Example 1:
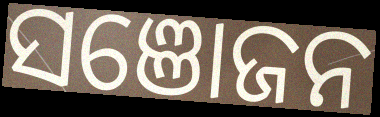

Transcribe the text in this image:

ସଞୋଜନ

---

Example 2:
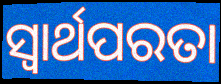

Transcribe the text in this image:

ସ୍ବାର୍ଥପରତା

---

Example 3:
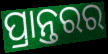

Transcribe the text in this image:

ପ୍ରାନ୍ତରର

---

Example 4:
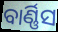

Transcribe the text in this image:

ବାର୍ଣ୍ଣିସ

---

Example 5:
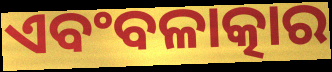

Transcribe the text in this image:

ଏବଂବଳାତ୍କାର